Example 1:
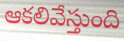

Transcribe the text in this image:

ఆకలివేస్తుంది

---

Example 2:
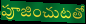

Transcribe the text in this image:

పూజించుటతో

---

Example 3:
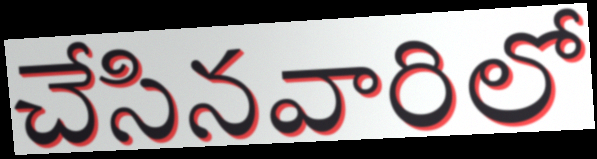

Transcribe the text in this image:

చేసినవారిలో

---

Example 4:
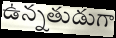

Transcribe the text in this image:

ఉన్నతుడుగా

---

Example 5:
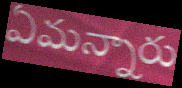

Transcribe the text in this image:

ఏమన్నారు